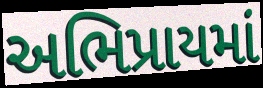
અભિપ્રાયમાં